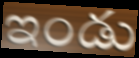
ఇండు